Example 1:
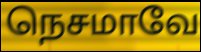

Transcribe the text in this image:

நெசமாவே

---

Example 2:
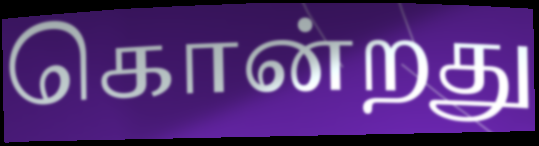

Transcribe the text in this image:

கொன்றது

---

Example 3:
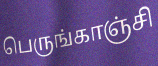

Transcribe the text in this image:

பெருங்காஞ்சி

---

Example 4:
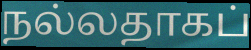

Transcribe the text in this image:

நல்லதாகப்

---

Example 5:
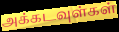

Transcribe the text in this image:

அக்கடவுள்கள்